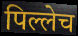
पिल्लेच